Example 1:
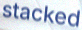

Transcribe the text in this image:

stacked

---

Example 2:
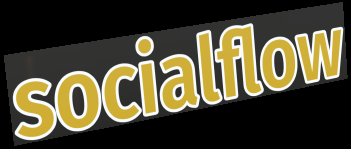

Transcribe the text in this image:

socialflow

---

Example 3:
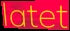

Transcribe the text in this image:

latet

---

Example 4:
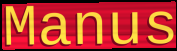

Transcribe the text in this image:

Manus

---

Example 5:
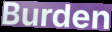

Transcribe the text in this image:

Burden